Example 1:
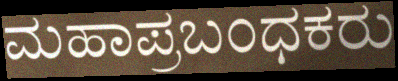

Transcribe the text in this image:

ಮಹಾಪ್ರಬಂಧಕರು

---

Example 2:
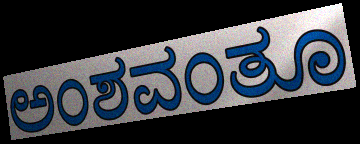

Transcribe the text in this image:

ಅಂಶವಂತೂ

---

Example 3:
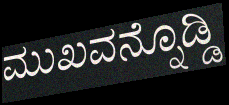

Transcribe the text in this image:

ಮುಖವನ್ನೊಡ್ಡಿ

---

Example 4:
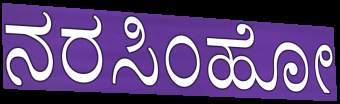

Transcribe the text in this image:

ನರಸಿಂಹೋ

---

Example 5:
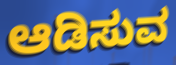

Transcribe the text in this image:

ಆಡಿಸುವ